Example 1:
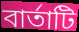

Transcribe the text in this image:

বার্তাটি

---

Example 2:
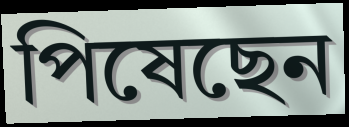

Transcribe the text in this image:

পিষেছেন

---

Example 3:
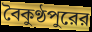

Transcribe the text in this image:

বৈকুণ্ঠপুরের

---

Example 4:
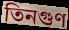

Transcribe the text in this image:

তিনগুণ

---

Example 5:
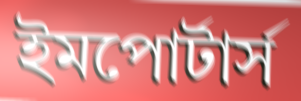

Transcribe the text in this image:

ইমপোর্টার্স